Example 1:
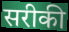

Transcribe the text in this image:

सरीकी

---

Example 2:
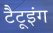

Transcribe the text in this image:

टैटूइंग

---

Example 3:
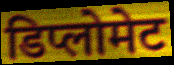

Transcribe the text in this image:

डिप्लोमेट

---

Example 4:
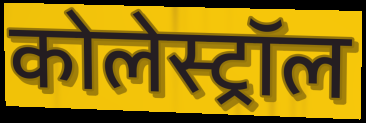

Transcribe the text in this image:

कोलेस्ट्रॉल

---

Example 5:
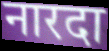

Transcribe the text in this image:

नारदा